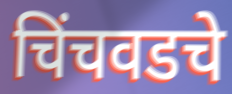
चिंचवडचे